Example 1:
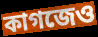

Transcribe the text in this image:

কাগজেও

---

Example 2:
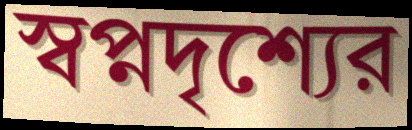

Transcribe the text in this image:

স্বপ্নদৃশ্যের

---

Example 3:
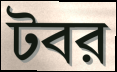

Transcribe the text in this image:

টবর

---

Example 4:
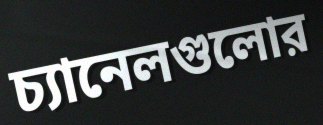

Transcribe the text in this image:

চ্যানেলগুলোর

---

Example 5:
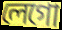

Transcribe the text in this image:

লেগো